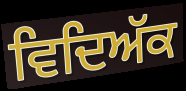
ਵਿਦਿਅੱਕ